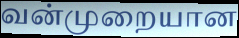
வன்முறையான